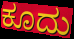
ಕೂದು